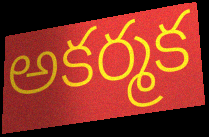
అకర్మక